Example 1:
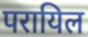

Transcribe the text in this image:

परायिल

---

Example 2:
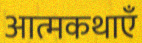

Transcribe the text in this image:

आत्मकथाएँ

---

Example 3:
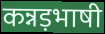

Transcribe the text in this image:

कन्नड़भाषी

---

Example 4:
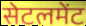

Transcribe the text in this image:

सेटलमेंट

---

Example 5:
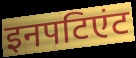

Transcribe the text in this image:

इनपटिएंट